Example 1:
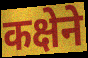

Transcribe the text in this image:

कक्षेने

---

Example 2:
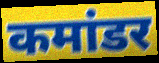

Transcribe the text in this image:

कमांडर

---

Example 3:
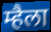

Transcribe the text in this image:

म्हैला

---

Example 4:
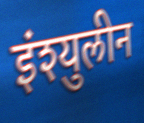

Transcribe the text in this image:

इंश्युलीन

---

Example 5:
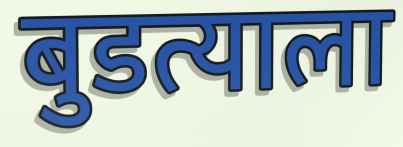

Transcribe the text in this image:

बुडत्याला